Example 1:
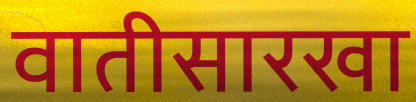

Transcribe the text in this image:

वातीसारखा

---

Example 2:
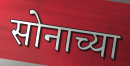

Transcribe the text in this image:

सोनाच्या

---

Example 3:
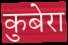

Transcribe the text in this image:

कुबेरा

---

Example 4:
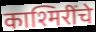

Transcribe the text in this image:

काश्मिरींचे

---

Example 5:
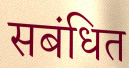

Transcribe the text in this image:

सबंधित